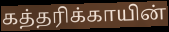
கத்தரிக்காயின்